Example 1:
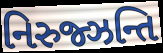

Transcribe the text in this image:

નિરુજ્ઝન્તિ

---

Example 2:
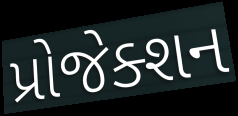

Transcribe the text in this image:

પ્રોજેક્શન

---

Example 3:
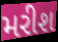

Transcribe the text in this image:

મરીશ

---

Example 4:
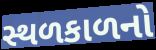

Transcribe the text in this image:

સ્થળકાળનો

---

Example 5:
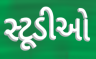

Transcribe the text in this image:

સ્ટૂડીઓ